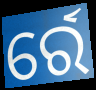
ର୍ରେ